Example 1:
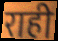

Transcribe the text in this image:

राही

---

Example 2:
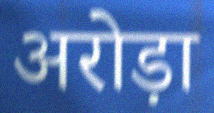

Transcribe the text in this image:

अरोड़ा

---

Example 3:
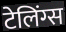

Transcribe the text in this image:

टेलिंग्स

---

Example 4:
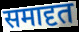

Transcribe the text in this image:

समादृत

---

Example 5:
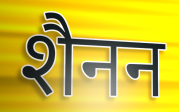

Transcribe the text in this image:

शैनन